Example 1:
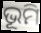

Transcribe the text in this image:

ଭୂମି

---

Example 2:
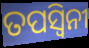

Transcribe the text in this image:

ତପସ୍ଵିନୀ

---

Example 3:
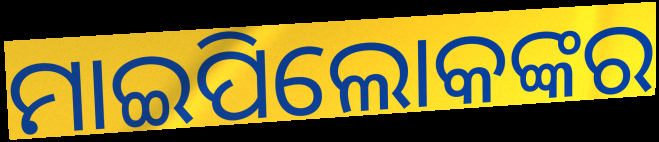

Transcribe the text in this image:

ମାଇପିଲୋକଙ୍କର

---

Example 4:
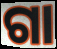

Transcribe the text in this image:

ଗା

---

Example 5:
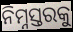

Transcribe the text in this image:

ନିମ୍ନସ୍ତରକୁ